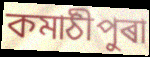
কমাঠীপুৰা